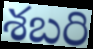
శబరి